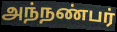
அந்நண்பர்